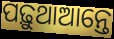
ପଢ଼ୁଥାଆନ୍ତେ